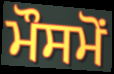
ਮੌਸਮੋਂ